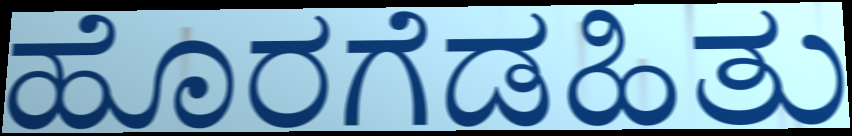
ಹೊರಗೆಡಹಿತು